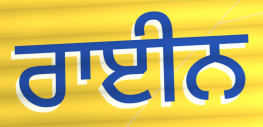
ਰਾਈਨ